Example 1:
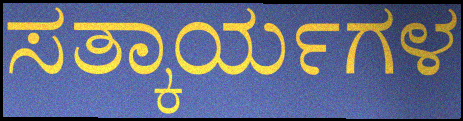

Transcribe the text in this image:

ಸತ್ಕಾರ್ಯಗಳ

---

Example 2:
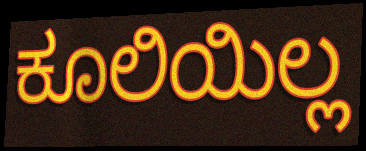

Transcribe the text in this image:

ಕೂಲಿಯಿಲ್ಲ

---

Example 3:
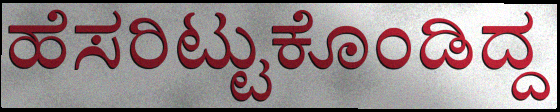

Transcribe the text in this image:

ಹೆಸರಿಟ್ಟುಕೊಂಡಿದ್ದ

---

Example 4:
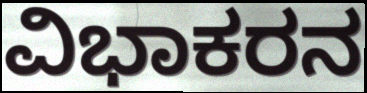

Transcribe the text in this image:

ವಿಭಾಕರನ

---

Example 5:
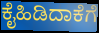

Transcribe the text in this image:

ಕೈಹಿಡಿದಾಕೆಗೆ